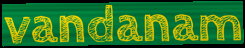
vandanam